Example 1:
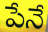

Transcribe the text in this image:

పేనే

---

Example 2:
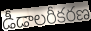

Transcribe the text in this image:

డీడాలరీకరణ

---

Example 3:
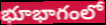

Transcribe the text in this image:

భూభాగంలో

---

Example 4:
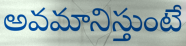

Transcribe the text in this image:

అవమానిస్తుంటే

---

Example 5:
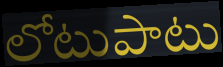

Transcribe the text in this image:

లోటుపాటు